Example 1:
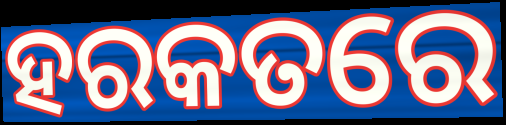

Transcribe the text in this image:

ହରକତରେ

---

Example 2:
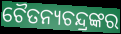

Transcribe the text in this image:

ଚୈତନ୍ୟଚନ୍ଦ୍ରଙ୍କର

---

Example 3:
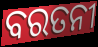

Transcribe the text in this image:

ବରତନୀ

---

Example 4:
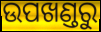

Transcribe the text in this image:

ଉପଖଣ୍ଡରୁ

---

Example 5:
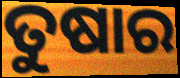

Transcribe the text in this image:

ତୁଷାର